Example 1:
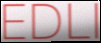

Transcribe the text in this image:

EDLI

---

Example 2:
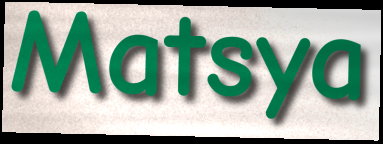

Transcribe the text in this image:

Matsya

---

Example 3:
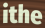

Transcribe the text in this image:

ithe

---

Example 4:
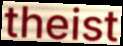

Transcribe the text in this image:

theist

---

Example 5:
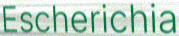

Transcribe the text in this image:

Escherichia